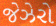
જેઝેરો